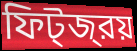
ফিট্‌জ্‌রয়